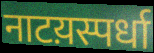
नाटय़स्पर्धा